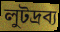
লুটদ্রব্য